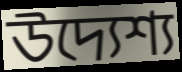
উদ্যেশ্য